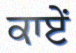
ਕਾਏਂ